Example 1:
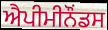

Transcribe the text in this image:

ਐਪੀਮੀਨੌਂਡਸ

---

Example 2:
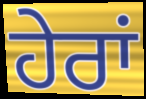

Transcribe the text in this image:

ਹੇਰਾਂ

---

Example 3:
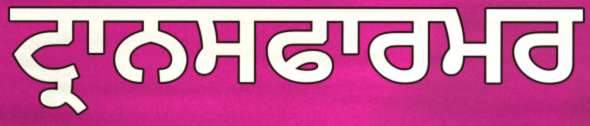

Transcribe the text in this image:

ਟ੍ਰਾਨਸਫਾਰਮਰ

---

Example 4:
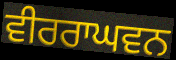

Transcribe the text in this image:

ਵੀਰਰਾਘਵਨ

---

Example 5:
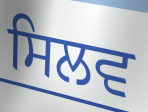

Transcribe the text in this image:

ਸਿਲਵ